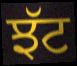
ਝੱਟ